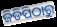
ଜିଡିପିଠାରୁ